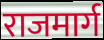
राजमार्ग